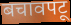
बचावपटू